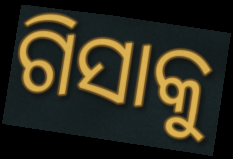
ଗିସାକୁ